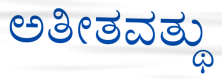
ಅತೀತವತ್ಥು